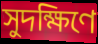
সুদক্ষিণে